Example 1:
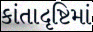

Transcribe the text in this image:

કાંતાદૃષ્ટિમાં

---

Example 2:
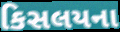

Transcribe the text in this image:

કિસલયના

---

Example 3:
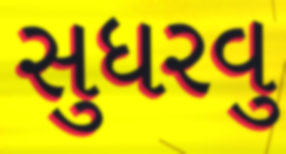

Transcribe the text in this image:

સુધરવુ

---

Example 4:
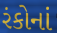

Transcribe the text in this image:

રંકોનાં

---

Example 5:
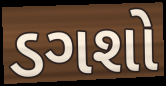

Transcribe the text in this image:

ડગશો